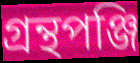
গ্রন্থপঞ্জি